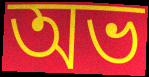
অভ